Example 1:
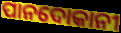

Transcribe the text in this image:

ପାନଦୋକାନୀ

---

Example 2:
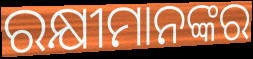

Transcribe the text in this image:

ରକ୍ଷୀମାନଙ୍କର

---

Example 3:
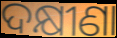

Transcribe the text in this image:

ଦକ୍ଷୀଣା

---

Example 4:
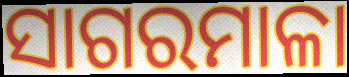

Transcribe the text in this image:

ସାଗରମାଳା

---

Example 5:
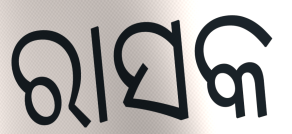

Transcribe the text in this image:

ରାସକ